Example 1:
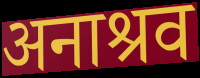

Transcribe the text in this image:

अनाश्रव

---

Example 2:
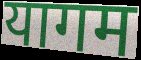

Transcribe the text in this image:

यागम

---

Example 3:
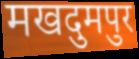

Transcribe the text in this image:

मखदुमपुर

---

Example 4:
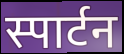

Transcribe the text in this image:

स्पार्टन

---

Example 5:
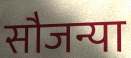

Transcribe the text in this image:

सौजन्या